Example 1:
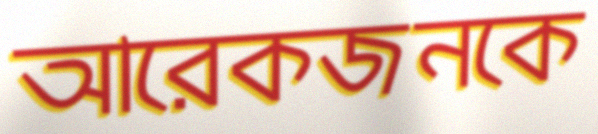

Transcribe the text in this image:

আরেকজনকে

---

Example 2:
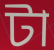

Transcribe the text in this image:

টা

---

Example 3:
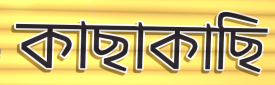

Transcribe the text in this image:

কাছাকাছি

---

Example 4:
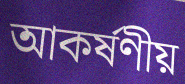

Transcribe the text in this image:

আকর্ষণীয়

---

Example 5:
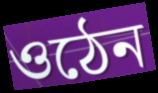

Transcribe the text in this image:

ওঠেন